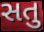
સતુ